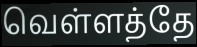
வெள்ளத்தே